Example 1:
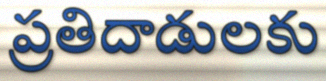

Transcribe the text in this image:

ప్రతిదాడులకు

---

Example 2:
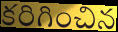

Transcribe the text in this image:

కరిగించిన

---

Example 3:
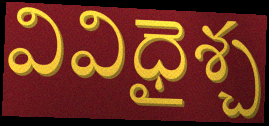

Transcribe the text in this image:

వివిధైశ్చ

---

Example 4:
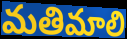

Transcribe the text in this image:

మతిమాలి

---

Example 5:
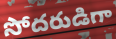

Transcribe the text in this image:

సోదరుడిగా